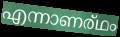
എന്നാണര്ഥം